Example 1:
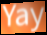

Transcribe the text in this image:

Yay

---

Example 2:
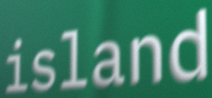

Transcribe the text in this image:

island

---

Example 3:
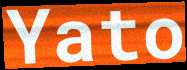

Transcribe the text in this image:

Yato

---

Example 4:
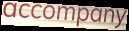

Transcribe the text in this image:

accompany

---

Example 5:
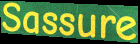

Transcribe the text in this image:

Sassure